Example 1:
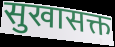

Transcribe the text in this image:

सुखासक्त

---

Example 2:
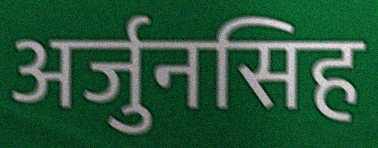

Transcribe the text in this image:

अर्जुनसिह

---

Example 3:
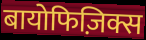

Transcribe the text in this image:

बायोफिज़िक्स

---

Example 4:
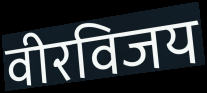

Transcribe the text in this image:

वीरविजय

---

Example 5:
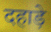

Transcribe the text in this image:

दहाड़े